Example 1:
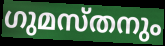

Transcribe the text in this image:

ഗുമസ്തനും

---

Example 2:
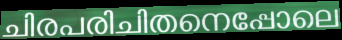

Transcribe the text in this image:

ചിരപരിചിതനെപ്പോലെ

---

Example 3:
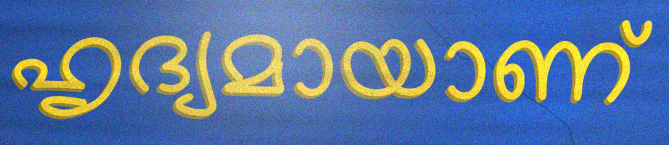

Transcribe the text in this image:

ഹൃദ്യമായാണ്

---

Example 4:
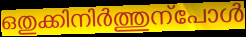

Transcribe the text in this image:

ഒതുക്കിനിർത്തുന്പോൾ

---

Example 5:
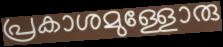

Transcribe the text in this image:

പ്രകാശമുള്ളോരു